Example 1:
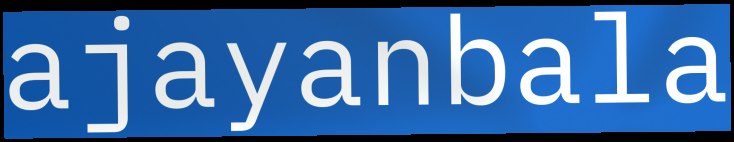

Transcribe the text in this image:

ajayanbala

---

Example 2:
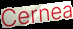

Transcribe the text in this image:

Cernea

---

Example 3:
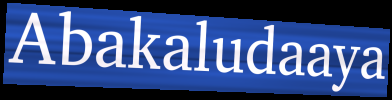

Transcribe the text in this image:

Abakaludaaya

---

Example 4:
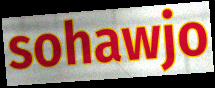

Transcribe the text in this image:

sohawjo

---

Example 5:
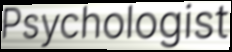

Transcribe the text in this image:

Psychologist